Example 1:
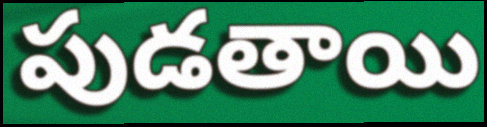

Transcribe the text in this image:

పుడతాయి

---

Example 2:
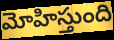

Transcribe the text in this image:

మోహిస్తుంది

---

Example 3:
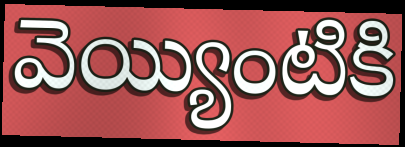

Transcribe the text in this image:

వెయ్యింటికి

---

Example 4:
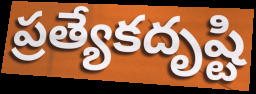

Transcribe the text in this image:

ప్రత్యేకదృష్టి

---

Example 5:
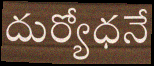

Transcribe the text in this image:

దుర్యోధనే